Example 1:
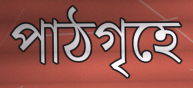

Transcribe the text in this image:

পাঠগৃহে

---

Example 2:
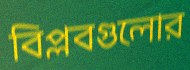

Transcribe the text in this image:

বিপ্লবগুলোর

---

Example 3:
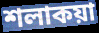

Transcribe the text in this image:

শলাকয়া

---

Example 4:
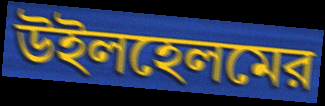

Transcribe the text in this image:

উইলহেলমের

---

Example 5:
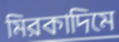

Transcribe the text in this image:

মিরকাদিমে